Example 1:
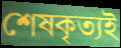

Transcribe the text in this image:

শেষকৃত্যই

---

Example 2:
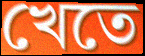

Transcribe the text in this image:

খেতে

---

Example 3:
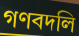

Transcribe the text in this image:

গণবদলি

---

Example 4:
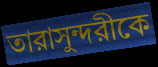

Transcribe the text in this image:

তারাসুন্দরীকে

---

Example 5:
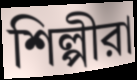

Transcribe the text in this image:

শিল্পীরা